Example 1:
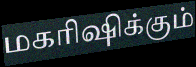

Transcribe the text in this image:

மகரிஷிக்கும்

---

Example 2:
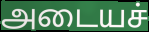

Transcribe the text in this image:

அடையச்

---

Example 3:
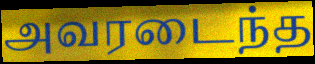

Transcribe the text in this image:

அவரடைந்த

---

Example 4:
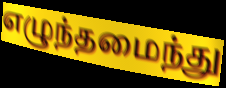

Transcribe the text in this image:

எழுந்தமைந்து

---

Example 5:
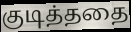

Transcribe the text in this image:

குடித்ததை